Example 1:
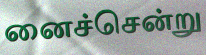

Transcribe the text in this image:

னைச்சென்று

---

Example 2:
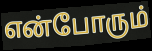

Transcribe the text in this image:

என்போரும்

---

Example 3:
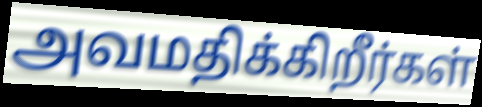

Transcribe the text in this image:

அவமதிக்கிறீர்கள்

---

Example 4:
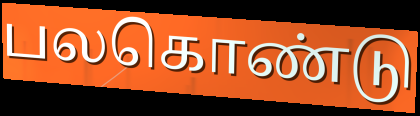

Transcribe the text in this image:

பலகொண்டு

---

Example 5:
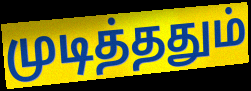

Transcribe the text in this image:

முடித்ததும்